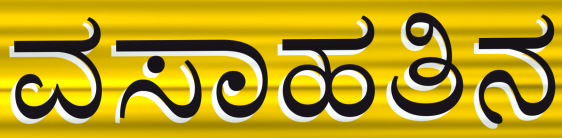
ವಸಾಹತಿನ